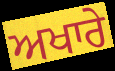
ਅਖਾਰੇ